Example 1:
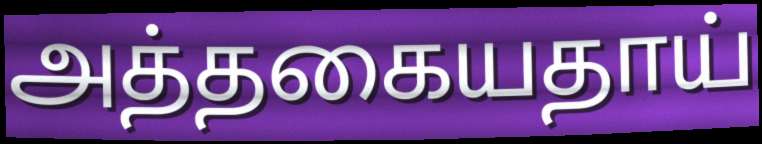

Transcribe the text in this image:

அத்தகையதாய்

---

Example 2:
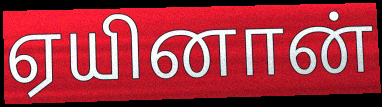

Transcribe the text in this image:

ஏயினான்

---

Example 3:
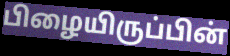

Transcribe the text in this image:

பிழையிருப்பின்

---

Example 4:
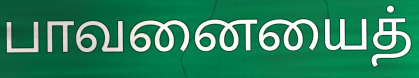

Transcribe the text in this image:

பாவனையைத்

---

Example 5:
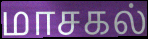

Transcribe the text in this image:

மாசகல்